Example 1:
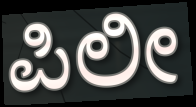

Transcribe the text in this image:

ಪಿಲೀ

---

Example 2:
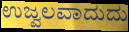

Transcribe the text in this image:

ಉಜ್ವಲವಾದುದು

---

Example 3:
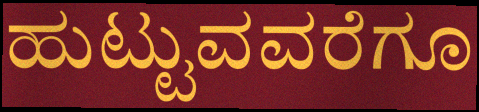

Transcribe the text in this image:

ಹುಟ್ಟುವವರೆಗೂ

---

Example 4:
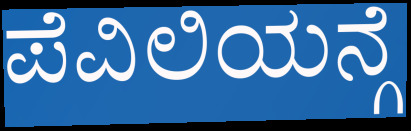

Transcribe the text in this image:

ಪೆವಿಲಿಯನ್ಗೆ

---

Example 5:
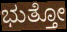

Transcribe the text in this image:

ಭುತ್ತೋ